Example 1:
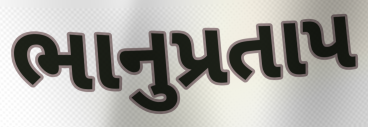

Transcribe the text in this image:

ભાનુપ્રતાપ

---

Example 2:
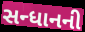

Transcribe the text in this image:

સન્ધાનની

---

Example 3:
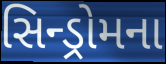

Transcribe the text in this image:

સિન્ડ્રોમના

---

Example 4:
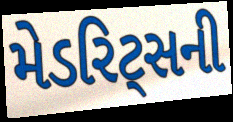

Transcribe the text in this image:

મેડરિટ્સની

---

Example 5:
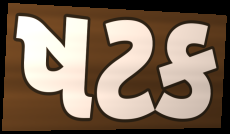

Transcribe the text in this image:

ષટક